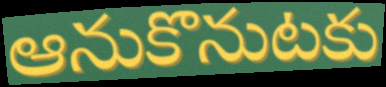
ఆనుకొనుటకు